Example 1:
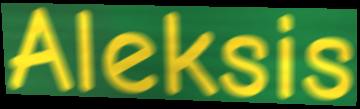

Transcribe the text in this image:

Aleksis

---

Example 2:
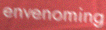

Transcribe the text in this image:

envenoming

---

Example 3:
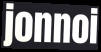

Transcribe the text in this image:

jonnoi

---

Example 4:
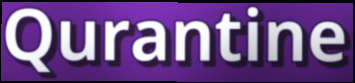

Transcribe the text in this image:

Qurantine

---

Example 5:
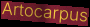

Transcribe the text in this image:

Artocarpus